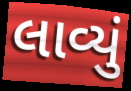
લાવ્યું